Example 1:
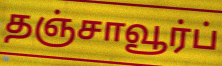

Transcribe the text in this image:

தஞ்சாவூர்ப்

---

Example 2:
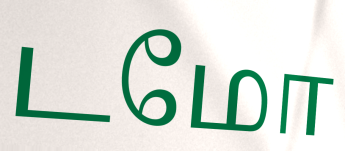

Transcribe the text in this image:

டமோ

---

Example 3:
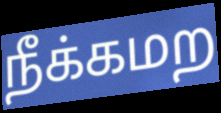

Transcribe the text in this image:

நீக்கமற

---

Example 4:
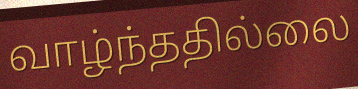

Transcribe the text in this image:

வாழ்ந்ததில்லை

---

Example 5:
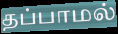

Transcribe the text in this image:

தப்பாமல்